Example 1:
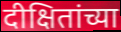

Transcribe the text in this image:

दीक्षितांच्या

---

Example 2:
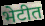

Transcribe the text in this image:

भेटीत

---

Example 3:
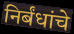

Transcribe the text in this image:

निर्बंधांचे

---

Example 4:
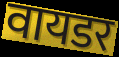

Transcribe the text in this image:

वायडर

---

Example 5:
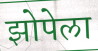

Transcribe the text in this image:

झोपेला